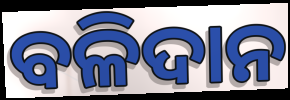
ବଳିଦାନ